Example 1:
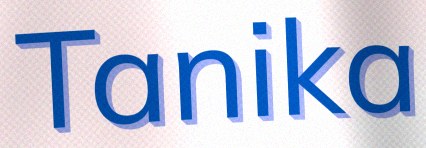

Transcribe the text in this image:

Tanika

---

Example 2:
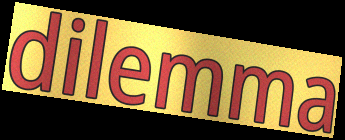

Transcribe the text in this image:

dilemma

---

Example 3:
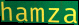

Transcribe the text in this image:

hamza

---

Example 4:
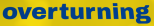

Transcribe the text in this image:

overturning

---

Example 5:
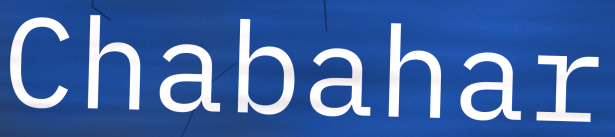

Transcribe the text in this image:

Chabahar